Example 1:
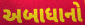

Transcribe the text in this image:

અબાધાનો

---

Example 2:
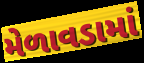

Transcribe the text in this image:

મેળાવડામાં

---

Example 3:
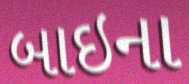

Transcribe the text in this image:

બાઇના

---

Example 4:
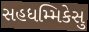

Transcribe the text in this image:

સહધમ્મિકેસુ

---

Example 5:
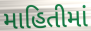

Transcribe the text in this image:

માહિતીમાં